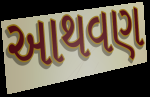
આથવણ